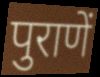
पुराणें